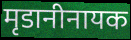
मृडानीनायक